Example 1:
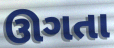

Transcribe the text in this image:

ઊગતા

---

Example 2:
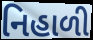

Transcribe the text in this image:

નિહાળી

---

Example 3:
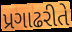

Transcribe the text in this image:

પ્રગાઢરીતે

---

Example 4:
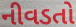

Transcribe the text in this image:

નીવડતો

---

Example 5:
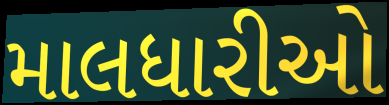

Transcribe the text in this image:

માલધારીઓ